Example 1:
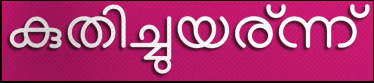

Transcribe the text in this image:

കുതിച്ചുയര്ന്ന്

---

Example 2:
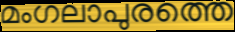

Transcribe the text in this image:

മംഗലാപുരത്തെ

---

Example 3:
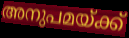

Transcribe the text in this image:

അനുപമയ്ക്ക്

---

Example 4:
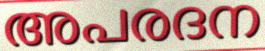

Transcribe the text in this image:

അപരദന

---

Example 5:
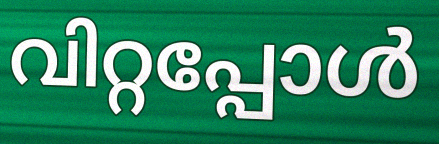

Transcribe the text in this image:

വിറ്റപ്പോൾ